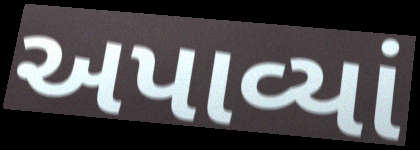
અપાવ્યાં